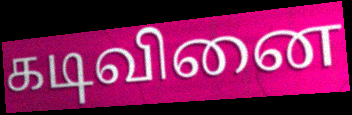
கடிவினை